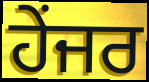
ਹੇਂਜਰ